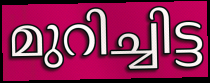
മുറിച്ചിട്ട